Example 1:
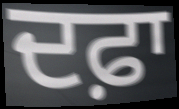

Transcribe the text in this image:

ਦਫ਼ਾ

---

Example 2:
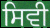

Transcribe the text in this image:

ਸਿਵੀ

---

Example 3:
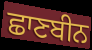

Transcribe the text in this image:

ਛਾਣਬੀਨ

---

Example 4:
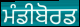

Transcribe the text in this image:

ਮੰਡੀਬੋਰਡ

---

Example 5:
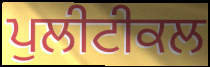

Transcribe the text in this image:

ਪੁਲੀਟੀਕਲ